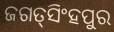
ଜଗତ୍‌ସିଂହପୁର